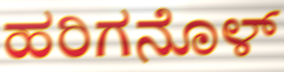
ಹರಿಗನೊಳ್